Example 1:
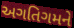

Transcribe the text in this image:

અગતિગમને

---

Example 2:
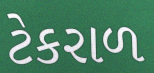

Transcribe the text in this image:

ટેકરાળ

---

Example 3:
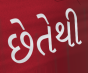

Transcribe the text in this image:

છેતેથી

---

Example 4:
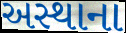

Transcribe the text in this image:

અસ્થાના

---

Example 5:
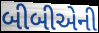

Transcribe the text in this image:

બીબીએની